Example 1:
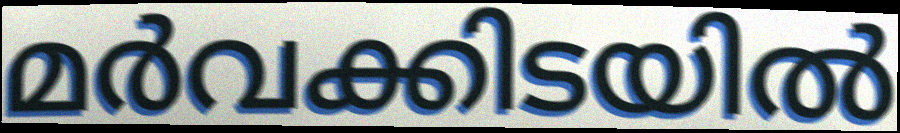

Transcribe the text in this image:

മർവക്കിടയിൽ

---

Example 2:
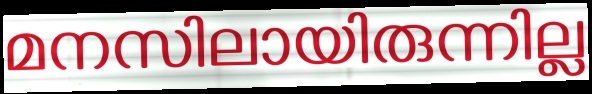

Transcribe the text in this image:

മനസിലായിരുന്നില്ല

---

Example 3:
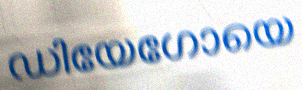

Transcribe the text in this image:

ഡിയേഗോയെ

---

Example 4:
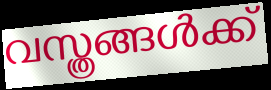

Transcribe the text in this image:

വസ്ത്രങ്ങൾക്ക്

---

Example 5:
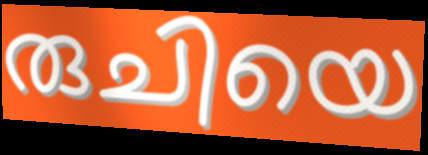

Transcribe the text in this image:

രുചിയെ